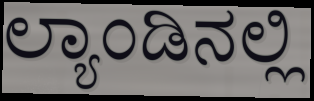
ಲ್ಯಾಂಡಿನಲ್ಲಿ